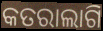
କତରାଲାଗି